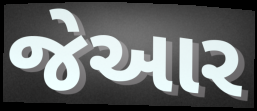
જેઆર